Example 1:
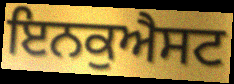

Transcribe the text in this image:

ਇਨਕੁਐਸਟ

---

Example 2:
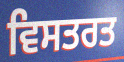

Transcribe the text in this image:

ਵਿਸਤਰਤ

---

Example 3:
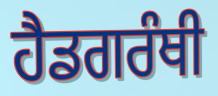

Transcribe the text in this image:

ਹੈਡਗਰੰਥੀ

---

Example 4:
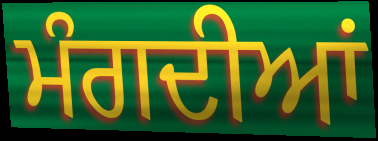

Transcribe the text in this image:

ਮੰਗਦੀਆਂ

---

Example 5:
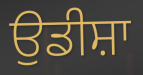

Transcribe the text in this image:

ਉਡੀਸ਼ਾ